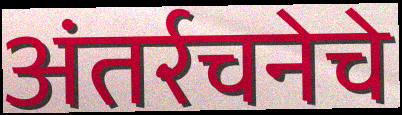
अंतर्रचनेचे